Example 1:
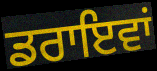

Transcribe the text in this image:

ਡਰਾਇਵਾਂ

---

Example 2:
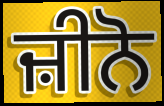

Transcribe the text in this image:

ਜ਼ੀਨੋ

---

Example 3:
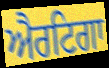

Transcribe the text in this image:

ਐਰਟਿਗਾ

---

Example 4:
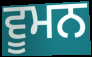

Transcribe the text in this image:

ਵੂਮਨ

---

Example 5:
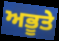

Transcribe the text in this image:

ਅਭੂਤੇ